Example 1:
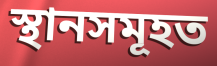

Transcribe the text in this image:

স্থানসমূহত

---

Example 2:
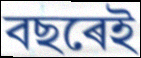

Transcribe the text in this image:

বছৰেই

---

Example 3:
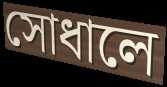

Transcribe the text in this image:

সোধালে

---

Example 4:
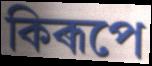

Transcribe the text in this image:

কিৰূপে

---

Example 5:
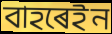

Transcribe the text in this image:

বাহৰেইন